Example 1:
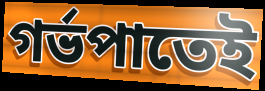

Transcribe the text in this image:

গৰ্ভপাতেই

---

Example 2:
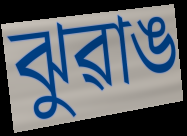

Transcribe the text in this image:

ঝুৱাঙ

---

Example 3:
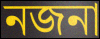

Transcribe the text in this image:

নজনা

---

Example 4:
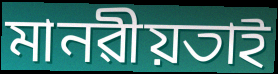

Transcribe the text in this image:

মানৱীয়তাই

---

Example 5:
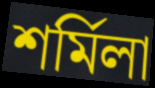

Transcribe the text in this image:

শৰ্মিলা